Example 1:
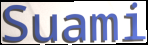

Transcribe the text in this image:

Suami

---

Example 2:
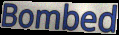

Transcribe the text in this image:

Bombed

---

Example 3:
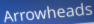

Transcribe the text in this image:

Arrowheads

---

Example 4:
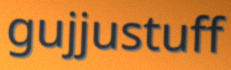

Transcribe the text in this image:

gujjustuff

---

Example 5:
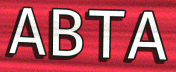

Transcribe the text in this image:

ABTA